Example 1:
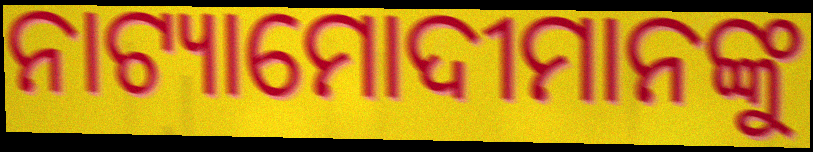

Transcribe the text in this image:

ନାଟ୍ୟାମୋଦୀମାନଙ୍କୁ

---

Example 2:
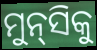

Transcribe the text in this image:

ମୁନ୍‌ସିକୁ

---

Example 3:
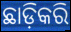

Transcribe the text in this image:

ଛାଡ଼ିକରି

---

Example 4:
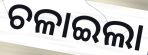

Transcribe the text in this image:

ଚଳାଇଲା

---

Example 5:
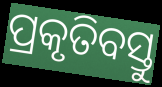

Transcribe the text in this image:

ପ୍ରକୃତିବସ୍ତୁ